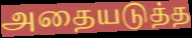
அதையடுத்த